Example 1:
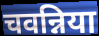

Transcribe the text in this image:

चवन्निया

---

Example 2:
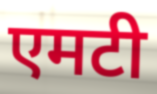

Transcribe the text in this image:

एमटी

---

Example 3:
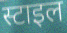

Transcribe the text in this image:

स्टाइल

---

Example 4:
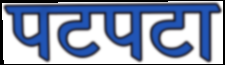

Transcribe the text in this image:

पटपटा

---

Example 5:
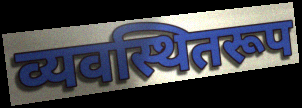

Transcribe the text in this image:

व्यवस्थितरूप